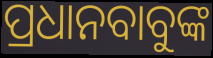
ପ୍ରଧାନବାବୁଙ୍କ